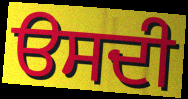
ੳਸਦੀ